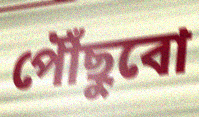
পৌঁছুবো